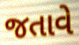
જતાવે